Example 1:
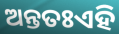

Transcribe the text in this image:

ଅନ୍ତତଃଏହି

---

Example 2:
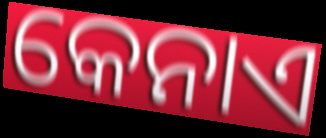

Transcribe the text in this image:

କେନାଏ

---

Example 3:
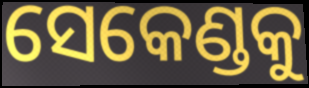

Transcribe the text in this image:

ସେକେଣ୍ଡକୁ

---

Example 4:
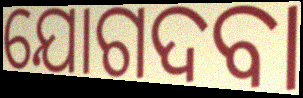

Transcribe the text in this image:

ଯୋଗଦବା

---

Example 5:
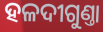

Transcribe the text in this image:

ହଳଦୀଗୁଣ୍ତା